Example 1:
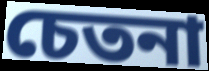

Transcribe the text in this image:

চেতনা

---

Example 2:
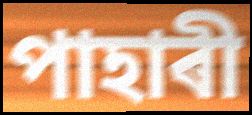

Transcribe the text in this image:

পাহাৰী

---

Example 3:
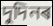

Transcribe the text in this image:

দুদিনৰ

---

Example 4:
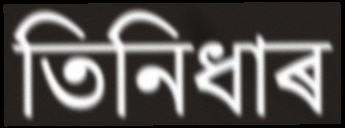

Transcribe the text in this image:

তিনিধাৰ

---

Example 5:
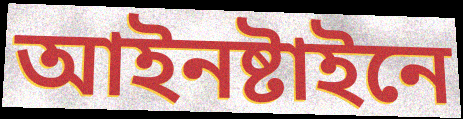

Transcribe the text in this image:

আইনষ্টাইনে